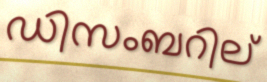
ഡിസംബറില്